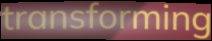
transforming